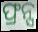
ଫ୍ରନ୍ସ